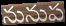
నునుప